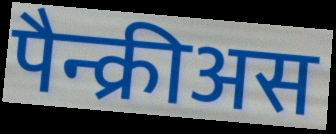
पैन्क्रीअस